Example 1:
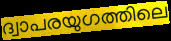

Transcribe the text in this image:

ദ്വാപരയുഗത്തിലെ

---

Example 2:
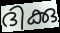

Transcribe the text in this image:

ദിക്കു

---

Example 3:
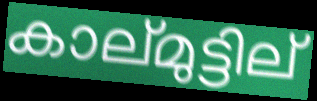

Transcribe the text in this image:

കാല്മുട്ടില്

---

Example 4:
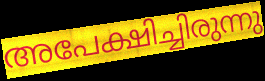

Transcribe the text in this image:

അപേക്ഷിച്ചിരുന്നു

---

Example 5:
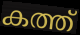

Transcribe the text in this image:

കത്ത്